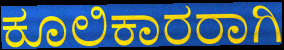
ಕೂಲಿಕಾರರಾಗಿ